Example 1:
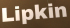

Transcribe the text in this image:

Lipkin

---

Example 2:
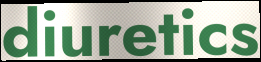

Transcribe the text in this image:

diuretics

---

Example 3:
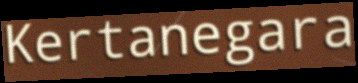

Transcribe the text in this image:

Kertanegara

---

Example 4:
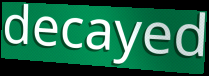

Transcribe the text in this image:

decayed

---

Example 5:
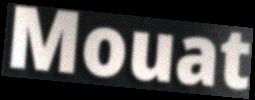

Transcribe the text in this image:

Mouat